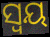
ସ୍ବୟ